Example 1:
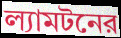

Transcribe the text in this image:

ল্যামটনের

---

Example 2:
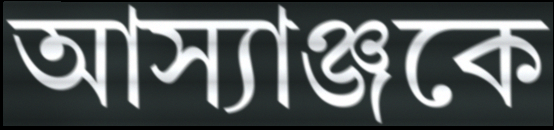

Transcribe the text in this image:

আস্যাঞ্জকে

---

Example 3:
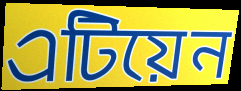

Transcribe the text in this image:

এটিয়েন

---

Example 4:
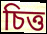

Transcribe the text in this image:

চিত্ত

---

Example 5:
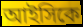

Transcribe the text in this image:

আইসিকে